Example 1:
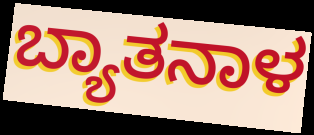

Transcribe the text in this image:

ಬ್ಯಾತನಾಳ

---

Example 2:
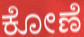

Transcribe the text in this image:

ಕೋಣೆ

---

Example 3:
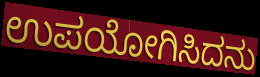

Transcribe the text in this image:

ಉಪಯೋಗಿಸಿದನು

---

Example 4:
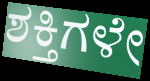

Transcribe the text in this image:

ಶಕ್ತಿಗಳೇ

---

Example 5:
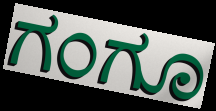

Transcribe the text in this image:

ಗಂಗೂ